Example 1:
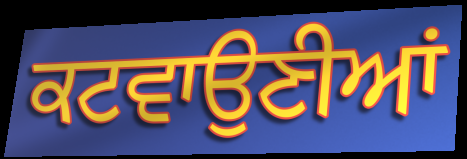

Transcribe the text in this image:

ਕਟਵਾਉਣੀਆਂ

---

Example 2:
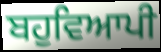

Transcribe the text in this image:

ਬਹੁਵਿਆਪੀ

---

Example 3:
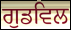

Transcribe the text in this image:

ਗੁਡਵਿਲ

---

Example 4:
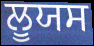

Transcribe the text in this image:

ਲੂਯਸ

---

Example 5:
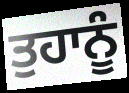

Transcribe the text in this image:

ਤੁਹਾਨੂੰ